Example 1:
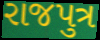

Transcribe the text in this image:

રાજપુત્ર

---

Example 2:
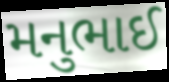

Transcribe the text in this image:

મનુભાઈ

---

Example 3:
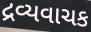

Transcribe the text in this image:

દ્રવ્યવાચક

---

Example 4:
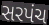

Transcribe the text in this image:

સરપંચ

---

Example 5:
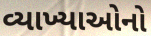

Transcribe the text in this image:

વ્યાખ્યાઓનો